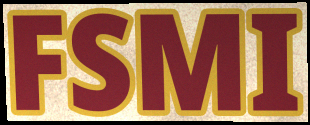
FSMI